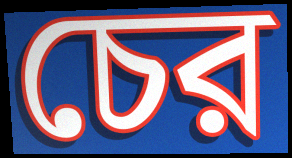
চের